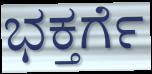
ಭಕ್ತರ್ಗೆ